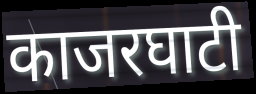
काजरघाटी